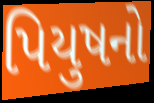
પિયુષનો